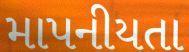
માપનીયતા